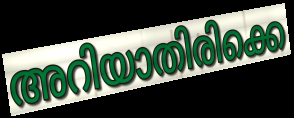
അറിയാതിരിക്കെ